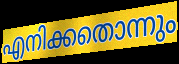
എനിക്കതൊന്നും